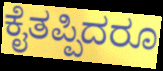
ಕೈತಪ್ಪಿದರೂ